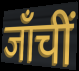
जाँचीं